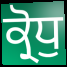
ਕ੍ਰੋਧੁ